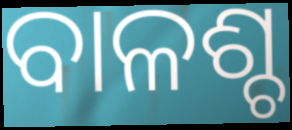
ବାଳଶ୍ଚ